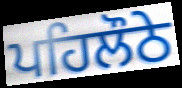
ਪਹਿਲੌਠੇ